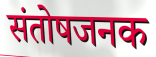
संतोषजनक